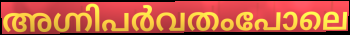
അഗ്നിപർവതംപോലെ